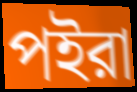
পইরা